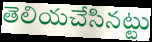
తెలియచేసినట్టు